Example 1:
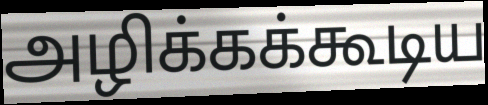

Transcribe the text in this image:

அழிக்கக்கூடிய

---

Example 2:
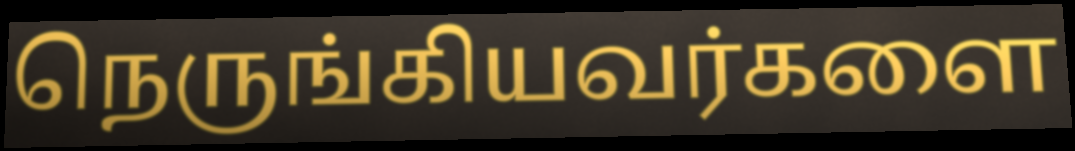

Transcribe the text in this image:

நெருங்கியவர்களை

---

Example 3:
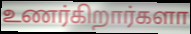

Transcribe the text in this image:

உணர்கிறார்களா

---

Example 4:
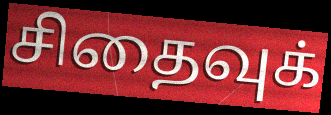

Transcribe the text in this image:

சிதைவுக்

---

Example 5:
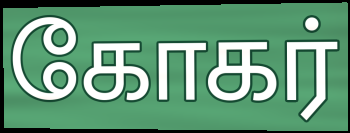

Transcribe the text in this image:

கோகர்